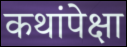
कथांपेक्षा